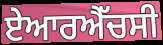
ਏਆਰਐੱਚਸੀ